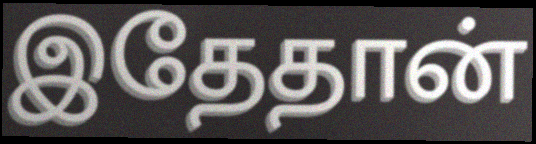
இதேதான்